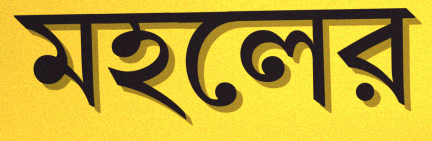
মহলের